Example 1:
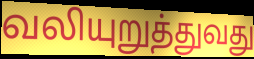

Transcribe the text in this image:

வலியுறுத்துவது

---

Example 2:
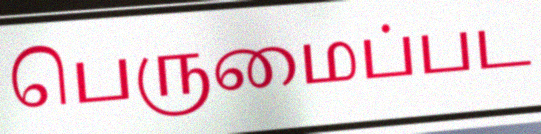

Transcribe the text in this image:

பெருமைப்பட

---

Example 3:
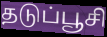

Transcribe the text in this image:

தடுப்பூசி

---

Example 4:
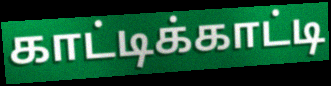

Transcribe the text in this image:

காட்டிக்காட்டி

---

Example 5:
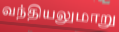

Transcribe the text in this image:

வந்தியலுமாறு